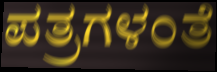
ಪತ್ರಗಳಂತೆ